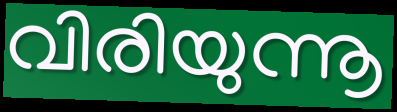
വിരിയുന്നൂ